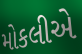
મોકલીએ